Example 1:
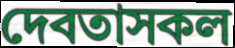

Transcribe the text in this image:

দেবতাসকল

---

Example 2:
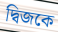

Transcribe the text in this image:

দ্বিজকে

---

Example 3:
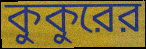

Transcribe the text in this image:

কুকুরের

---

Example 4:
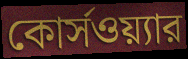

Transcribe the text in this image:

কোর্সওয়্যার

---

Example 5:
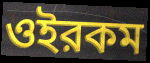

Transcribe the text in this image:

ওইরকম